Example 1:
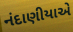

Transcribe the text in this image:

નંદાણીયાએ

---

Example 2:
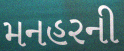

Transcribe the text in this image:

મનહરની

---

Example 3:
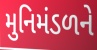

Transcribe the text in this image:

મુનિમંડળને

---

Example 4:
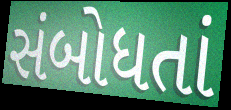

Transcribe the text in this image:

સંબોધતાં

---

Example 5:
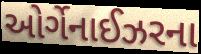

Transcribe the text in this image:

ઓર્ગેનાઈઝરના